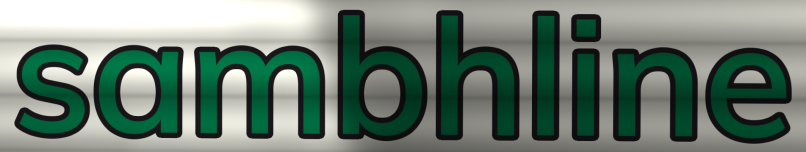
sambhline